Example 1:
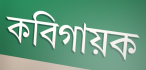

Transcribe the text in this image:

কবিগায়ক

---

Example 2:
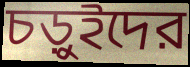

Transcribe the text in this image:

চড়ুইদের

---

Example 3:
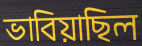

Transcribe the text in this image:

ভাবিয়াছিল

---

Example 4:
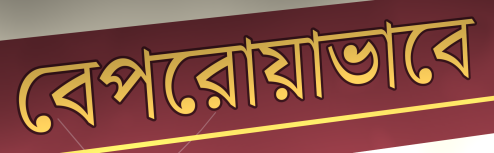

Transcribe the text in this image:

বেপরোয়াভাবে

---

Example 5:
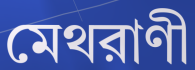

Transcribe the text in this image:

মেথরাণী